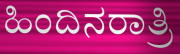
ಹಿಂದಿನರಾತ್ರಿ